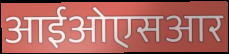
आईओएसआर